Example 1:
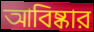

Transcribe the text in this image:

আবিষ্কার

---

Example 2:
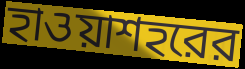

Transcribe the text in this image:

হাওয়াশহরের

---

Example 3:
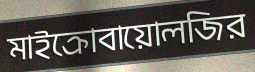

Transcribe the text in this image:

মাইক্রোবায়োলজির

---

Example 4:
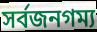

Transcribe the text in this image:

সর্বজনগম্য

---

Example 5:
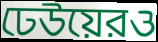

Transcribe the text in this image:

ঢেউয়েরও